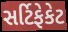
સર્ટિફેકેટ